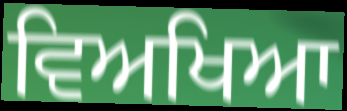
ਵਿਅਖਿਆ